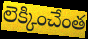
లెక్కించేంత